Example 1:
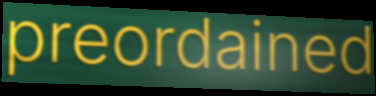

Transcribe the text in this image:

preordained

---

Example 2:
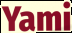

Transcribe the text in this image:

Yami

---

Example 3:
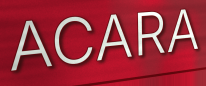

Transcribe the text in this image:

ACARA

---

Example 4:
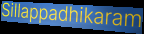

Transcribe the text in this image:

Sillappadhikaram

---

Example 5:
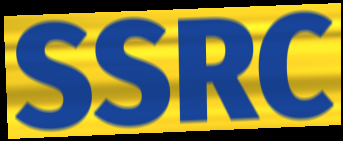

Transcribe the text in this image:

SSRC